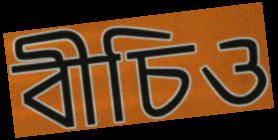
বীচিও